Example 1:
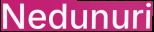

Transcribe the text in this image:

Nedunuri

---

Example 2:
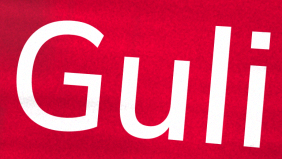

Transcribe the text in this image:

Guli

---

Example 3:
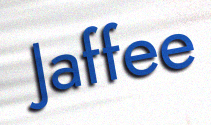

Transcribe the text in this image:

Jaffee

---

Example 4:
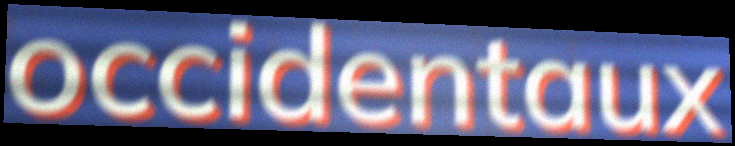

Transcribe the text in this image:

occidentaux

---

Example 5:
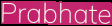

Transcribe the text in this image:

Prabhate